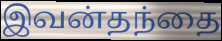
இவன்தந்தை